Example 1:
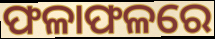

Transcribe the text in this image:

ଫଳାଫଳରେ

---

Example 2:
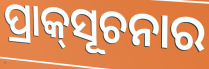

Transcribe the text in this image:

ପ୍ରାକ୍‌ସୂଚନାର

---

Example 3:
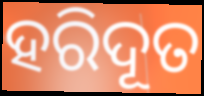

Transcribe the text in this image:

ହରିଦୂତ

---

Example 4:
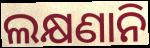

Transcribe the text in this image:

ଲକ୍ଷଣାନି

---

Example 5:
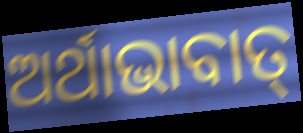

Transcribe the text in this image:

ଅର୍ଥାଭାବାତ୍